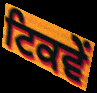
ਟਿਕਵੇਂ